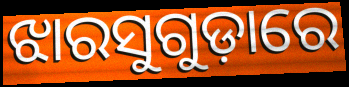
ଝାରସୁଗୁଡ଼ାରେ